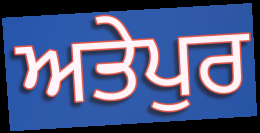
ਅਤੇਪੁਰ